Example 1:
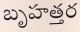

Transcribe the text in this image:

బృహత్తర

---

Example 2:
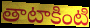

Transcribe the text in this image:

తాటాకింటి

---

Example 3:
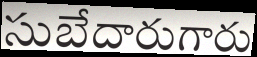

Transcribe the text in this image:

సుబేదారుగారు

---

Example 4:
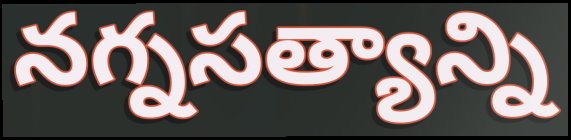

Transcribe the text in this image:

నగ్నసత్యాన్ని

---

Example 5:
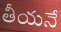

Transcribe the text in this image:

తీయనే